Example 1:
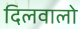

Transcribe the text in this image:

दिलवालो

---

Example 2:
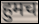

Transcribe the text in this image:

हुमच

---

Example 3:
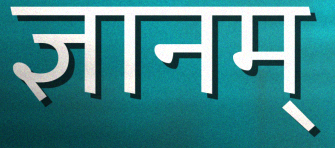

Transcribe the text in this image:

ज्ञानम्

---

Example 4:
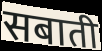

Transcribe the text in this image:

सबाती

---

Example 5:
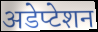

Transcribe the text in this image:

अडेप्टेशन